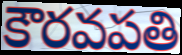
కౌరవపతి